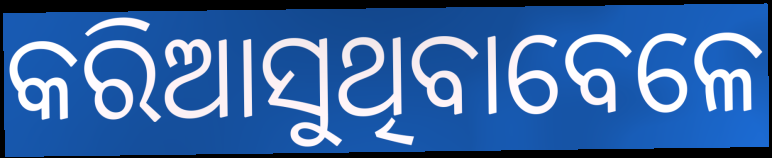
କରିଆସୁଥିବାବେଳେ